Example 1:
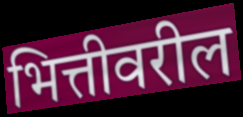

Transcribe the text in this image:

भित्तीवरील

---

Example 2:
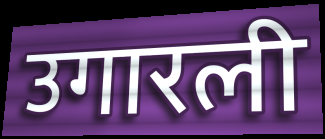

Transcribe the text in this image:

उगारली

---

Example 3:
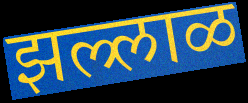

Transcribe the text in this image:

झल्लाळ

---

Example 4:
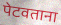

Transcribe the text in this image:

पेटवताना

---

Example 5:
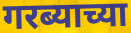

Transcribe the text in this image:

गरब्याच्या